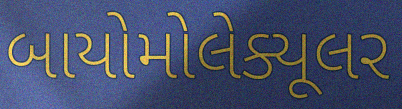
બાયોમોલેક્યૂલર